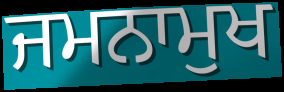
ਜਮਨਾਮੁਖ